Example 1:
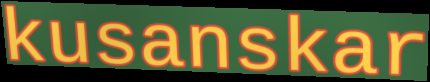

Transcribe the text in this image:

kusanskar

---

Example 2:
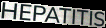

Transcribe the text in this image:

HEPATITIS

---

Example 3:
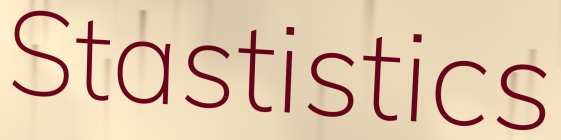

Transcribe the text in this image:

Stastistics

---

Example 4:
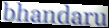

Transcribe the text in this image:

bhandaru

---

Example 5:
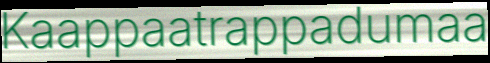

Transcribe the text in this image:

Kaappaatrappadumaa